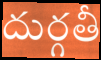
దుర్గతీ